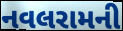
નવલરામની